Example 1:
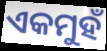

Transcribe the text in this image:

ଏକମୁହଁ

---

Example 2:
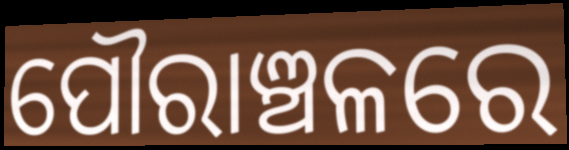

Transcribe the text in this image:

ପୌରାଞ୍ଚଳରେ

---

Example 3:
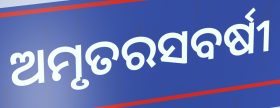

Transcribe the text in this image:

ଅମୃତରସବର୍ଷୀ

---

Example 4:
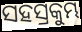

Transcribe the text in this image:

ସହସ୍ରକୁମ୍ଭ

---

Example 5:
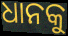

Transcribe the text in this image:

ଧାନକୁ